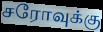
சரோவுக்கு